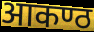
आकण्ठ